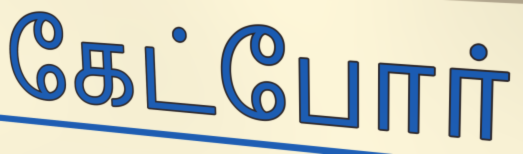
கேட்போர்